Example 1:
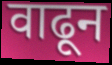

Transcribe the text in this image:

वाढून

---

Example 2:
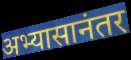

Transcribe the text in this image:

अभ्यासानंतर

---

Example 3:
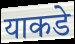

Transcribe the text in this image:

याकडे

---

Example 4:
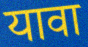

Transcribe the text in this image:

यावा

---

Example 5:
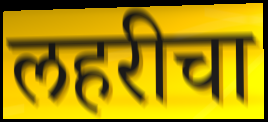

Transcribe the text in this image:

लहरीचा